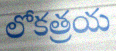
లోకత్రయ